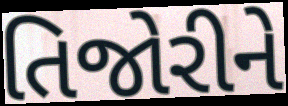
તિજોરીને